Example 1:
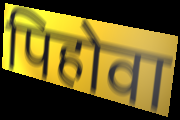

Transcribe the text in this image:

पिहोवा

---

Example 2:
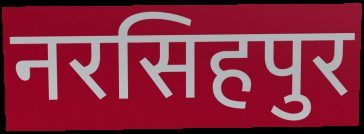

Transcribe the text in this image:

नरसिहपुर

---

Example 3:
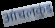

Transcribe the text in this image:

आंचलकुंड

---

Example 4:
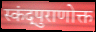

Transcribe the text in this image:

स्कंद्पुराणोक्त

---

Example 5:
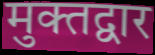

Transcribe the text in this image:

मुक्तद्वार